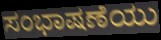
ಸಂಭಾಷಣೆಯು